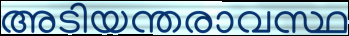
അടിയന്തരാവസ്ഥ